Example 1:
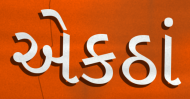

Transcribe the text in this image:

એકઠાં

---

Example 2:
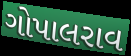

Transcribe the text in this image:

ગોપાલરાવ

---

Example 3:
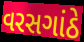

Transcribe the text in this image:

વરસગાંઠે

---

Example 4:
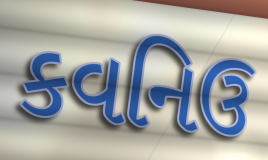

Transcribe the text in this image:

કવનિઉ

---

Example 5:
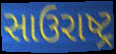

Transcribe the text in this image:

સાઉરાષ્ટ્ર